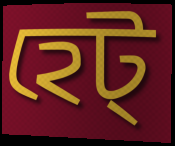
হেট্